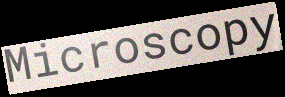
Microscopy